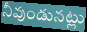
నీవుండునట్లు